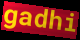
gadhi